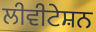
ਲੀਵੀਟੇਸ਼ਨ